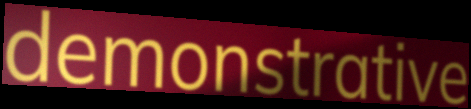
demonstrative